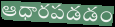
ఆధారపడడం